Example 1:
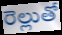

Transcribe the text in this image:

రెల్లుతో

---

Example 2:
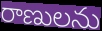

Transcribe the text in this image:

రాణులను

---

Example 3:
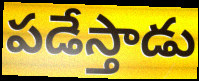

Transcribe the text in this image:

పడేస్తాడు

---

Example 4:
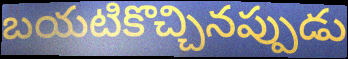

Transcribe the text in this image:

బయటికొచ్చినప్పుడు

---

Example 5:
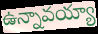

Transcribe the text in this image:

ఉన్నావయ్యా